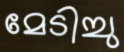
മേടിച്ചു